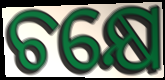
ଚକ୍ଷେ